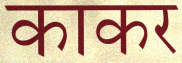
काकर